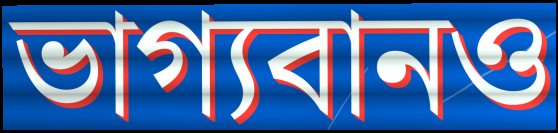
ভাগ্যবানও